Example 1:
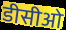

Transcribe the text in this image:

डीसीओ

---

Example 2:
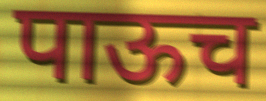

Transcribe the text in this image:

पाऊच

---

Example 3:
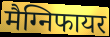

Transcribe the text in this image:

मैग्निफायर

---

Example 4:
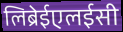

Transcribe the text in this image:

लिब्रेईएलईसी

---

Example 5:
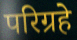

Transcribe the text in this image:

परिग्रहे